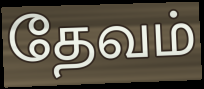
தேவம்